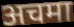
अचमा